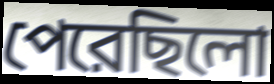
পেরেছিলো